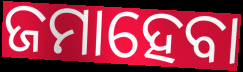
ଜମାହେବା